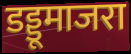
डड्डूमाजरा